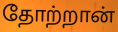
தோற்றான்